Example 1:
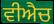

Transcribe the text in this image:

ਵੀਐਚ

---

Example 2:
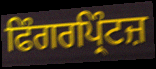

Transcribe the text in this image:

ਫਿੰਗਰਪ੍ਰਿੰਟਜ਼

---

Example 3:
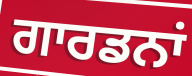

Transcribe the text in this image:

ਗਾਰਡਨਾਂ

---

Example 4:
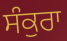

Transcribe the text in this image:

ਸੰਕੁਰਾ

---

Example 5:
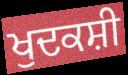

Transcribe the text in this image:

ਖੁਦਕਸ਼ੀ